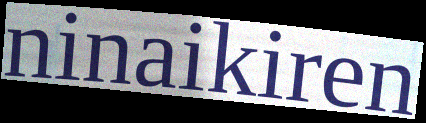
ninaikiren